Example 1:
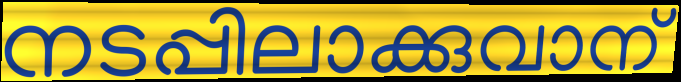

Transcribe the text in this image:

നടപ്പിലാക്കുവാന്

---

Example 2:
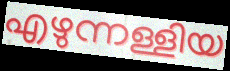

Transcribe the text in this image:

എഴുന്നള്ളിയ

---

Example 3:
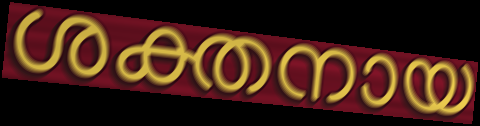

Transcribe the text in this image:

ശക്തനായ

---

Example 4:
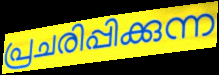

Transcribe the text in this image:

പ്രചരിപ്പിക്കുന്ന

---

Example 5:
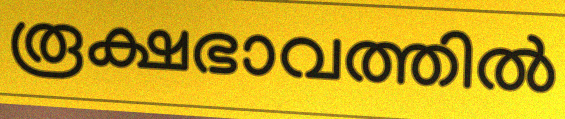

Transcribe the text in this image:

രൂക്ഷഭാവത്തിൽ